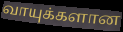
வாயுக்களான